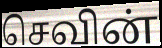
செவின்